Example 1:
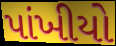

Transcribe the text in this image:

પાંખીયો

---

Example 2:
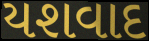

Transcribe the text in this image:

યશવાદ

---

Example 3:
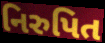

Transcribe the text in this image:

નિરુપિત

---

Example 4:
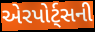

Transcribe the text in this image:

એરપોર્ટ્સની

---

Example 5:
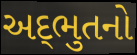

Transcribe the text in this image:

અદ્‌ભુતનો